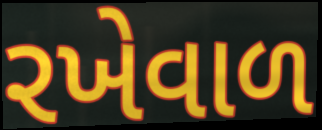
રખેવાળ